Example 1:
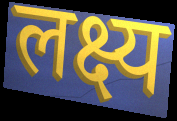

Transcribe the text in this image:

लक्ष्य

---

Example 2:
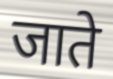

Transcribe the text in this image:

जाते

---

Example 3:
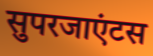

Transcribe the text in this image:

सुपरजाएंटस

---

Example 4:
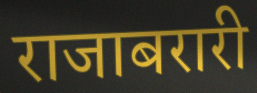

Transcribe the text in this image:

राजाबरारी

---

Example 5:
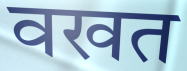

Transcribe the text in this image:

वखत